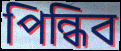
পিন্ধিব